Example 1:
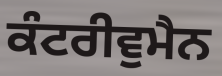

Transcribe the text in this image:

ਕੰਟਰੀਵੁਮੈਨ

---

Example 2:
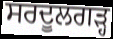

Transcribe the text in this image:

ਸਰਦੂਲਗੜ੍ਹ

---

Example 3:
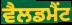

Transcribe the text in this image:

ਵੈਲਡਮੈਂਟ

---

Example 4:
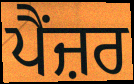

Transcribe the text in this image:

ਪੈਂਜ਼ਰ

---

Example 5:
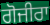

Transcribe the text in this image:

ਗੋਜੀਰਾ